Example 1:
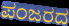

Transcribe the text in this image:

ಪಂಜರದ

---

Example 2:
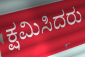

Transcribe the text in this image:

ಕ್ಷಮಿಸಿದರು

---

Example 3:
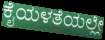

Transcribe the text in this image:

ಕೈಯಳತೆಯಲ್ಲೇ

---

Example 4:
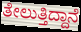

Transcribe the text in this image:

ತೇಲುತ್ತಿದ್ದಾನೆ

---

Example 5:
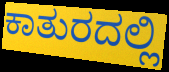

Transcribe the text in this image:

ಕಾತುರದಲ್ಲಿ